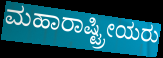
ಮಹಾರಾಷ್ಟ್ರೀಯರು